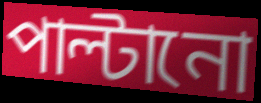
পাল্টানো